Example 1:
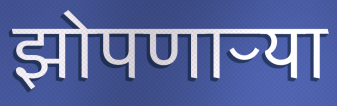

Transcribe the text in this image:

झोपणाऱ्या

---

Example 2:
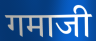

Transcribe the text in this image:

गमाजी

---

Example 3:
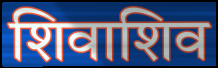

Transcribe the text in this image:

शिवाशिव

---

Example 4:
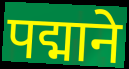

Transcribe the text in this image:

पद्माने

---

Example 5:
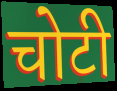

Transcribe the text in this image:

चोटी